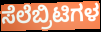
ಸೆಲೆಬ್ರಿಟಿಗಳ